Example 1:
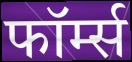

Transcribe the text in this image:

फॉर्म्स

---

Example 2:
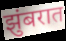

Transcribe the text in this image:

झुंबरात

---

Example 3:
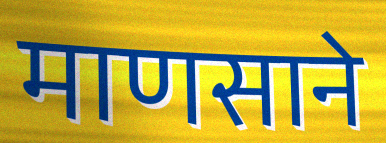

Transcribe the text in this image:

माणसाने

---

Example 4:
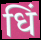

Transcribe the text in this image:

धिं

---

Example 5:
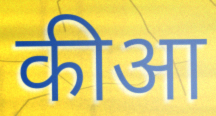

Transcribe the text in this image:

कीआ